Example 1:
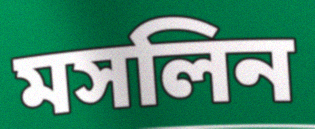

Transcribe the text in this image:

মসলিন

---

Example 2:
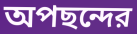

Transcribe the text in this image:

অপছন্দের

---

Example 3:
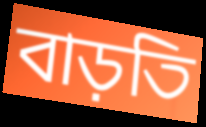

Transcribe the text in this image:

বাড়তি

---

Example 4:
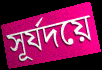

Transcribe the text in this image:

সূর্যদয়ে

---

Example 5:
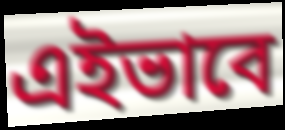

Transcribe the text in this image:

এইভাবে